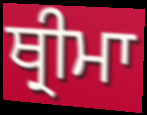
ਥ੍ਰੀਮਾ